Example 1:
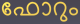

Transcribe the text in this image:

ഫോറും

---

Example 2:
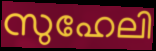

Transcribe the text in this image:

സുഹേലി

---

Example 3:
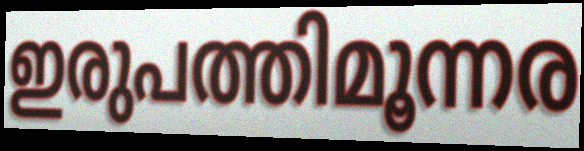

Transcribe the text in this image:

ഇരുപത്തിമൂന്നര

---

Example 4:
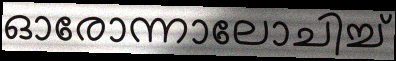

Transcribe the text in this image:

ഓരോന്നാലോചിച്ച്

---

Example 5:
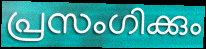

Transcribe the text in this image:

പ്രസംഗിക്കും